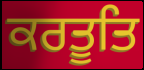
ਕਰਤੂਤਿ